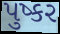
પુષ્કર